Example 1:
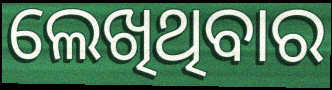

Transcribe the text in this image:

ଲେଖିଥିବାର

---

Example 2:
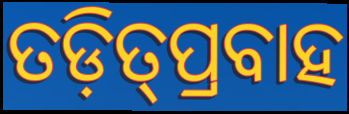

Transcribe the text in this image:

ତଡ଼ିତ୍‍ପ୍ରବାହ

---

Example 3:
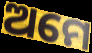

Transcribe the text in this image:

ଅମେ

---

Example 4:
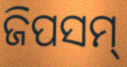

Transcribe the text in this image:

ଜିପସମ୍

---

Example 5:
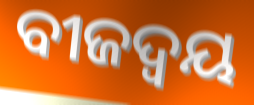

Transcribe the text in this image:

ବୀଜଦ୍ଵୟ